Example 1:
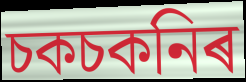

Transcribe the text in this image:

চকচকনিৰ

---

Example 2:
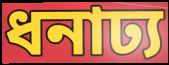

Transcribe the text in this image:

ধনাঢ্য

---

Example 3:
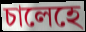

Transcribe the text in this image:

চালেহে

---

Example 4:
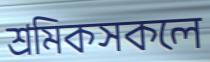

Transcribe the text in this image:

শ্ৰমিকসকলে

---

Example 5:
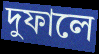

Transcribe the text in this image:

দুফালে